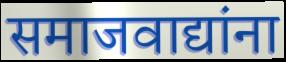
समाजवाद्यांना